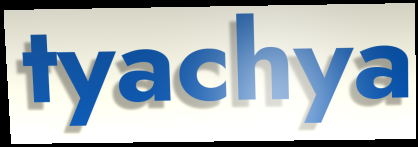
tyachya